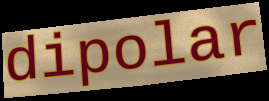
dipolar